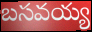
బసవయ్య